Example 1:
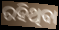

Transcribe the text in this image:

ରହିଥିବା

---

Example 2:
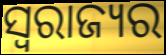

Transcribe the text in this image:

ସ୍ୱରାଜ୍ୟର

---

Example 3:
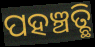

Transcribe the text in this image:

ପହଞ୍ଚତ୍ଛି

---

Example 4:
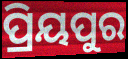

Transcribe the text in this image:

ପ୍ରିୟପୁର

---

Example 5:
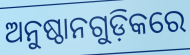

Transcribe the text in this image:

ଅନୁଷ୍ଠାନଗୁଡ଼ିକରେ